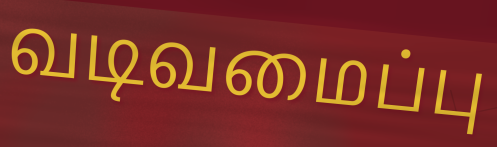
வடிவமைப்பு